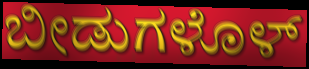
ಬೀಡುಗಳೊಳ್